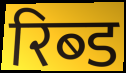
रिब्ड